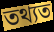
তথ্যত